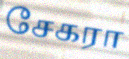
சேகரா